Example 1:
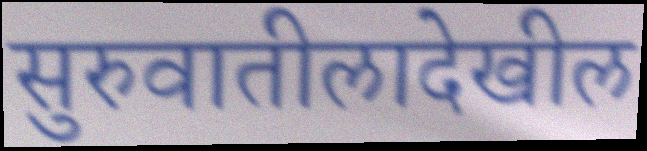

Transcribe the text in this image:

सुरुवातीलादेखील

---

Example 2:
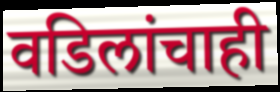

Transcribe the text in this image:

वडिलांचाही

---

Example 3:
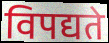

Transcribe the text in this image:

विपद्यते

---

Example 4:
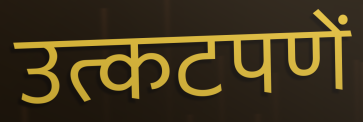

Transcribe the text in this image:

उत्कटपणें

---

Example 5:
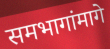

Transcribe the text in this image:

समभागांमागे